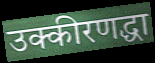
उक्कीरणद्धा